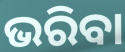
ଭରିବା